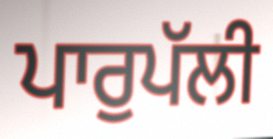
ਪਾਰੁਪੱਲੀ